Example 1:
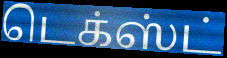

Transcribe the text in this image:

டெக்ஸ்ட்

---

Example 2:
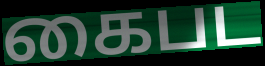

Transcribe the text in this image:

கைபட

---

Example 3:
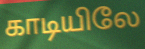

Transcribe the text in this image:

காடியிலே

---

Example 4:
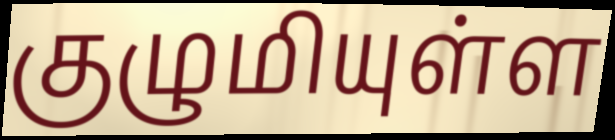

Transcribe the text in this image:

குழுமியுள்ள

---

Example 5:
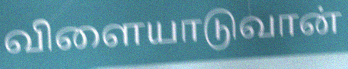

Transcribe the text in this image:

விளையாடுவான்